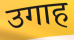
उगाह